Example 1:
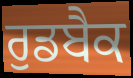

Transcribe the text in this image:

ਰੁਡਬੈਕ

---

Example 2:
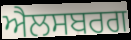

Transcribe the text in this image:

ਐਲਸਬਰਗ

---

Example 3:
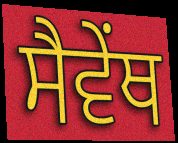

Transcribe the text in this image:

ਸੈਵੇਂਥ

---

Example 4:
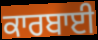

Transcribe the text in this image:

ਕਾਰਬਾਈ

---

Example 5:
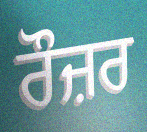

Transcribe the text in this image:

ਰੌਜ਼ਰ